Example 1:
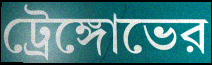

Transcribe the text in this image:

ট্রেঙ্গোভের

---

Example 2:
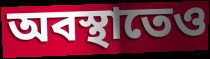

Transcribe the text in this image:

অবস্থাতেও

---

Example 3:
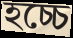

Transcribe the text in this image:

হচ্চে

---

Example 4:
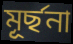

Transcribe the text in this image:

মূর্ছনা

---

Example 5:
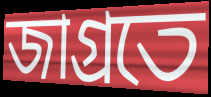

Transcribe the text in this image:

জাগ্রতে